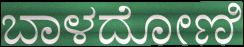
ಬಾಳದೋಣಿ